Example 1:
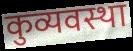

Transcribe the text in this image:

कुव्यवस्था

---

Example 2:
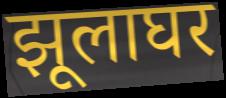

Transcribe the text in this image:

झूलाघर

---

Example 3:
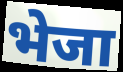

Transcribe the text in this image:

भेजा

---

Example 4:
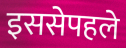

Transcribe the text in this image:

इससेपहले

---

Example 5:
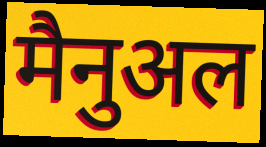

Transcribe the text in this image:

मैनुअल